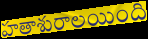
హతాశురాలయింది